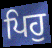
ਪਿਹੁ